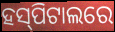
ହସ୍‍ପିଟାଲରେ